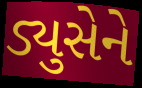
ડ્યુસેને